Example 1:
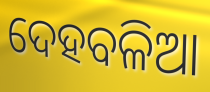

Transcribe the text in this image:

ଦେହବଳିଆ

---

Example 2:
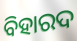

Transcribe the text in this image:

ବିହାରଦ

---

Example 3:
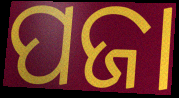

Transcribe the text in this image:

ପଜା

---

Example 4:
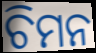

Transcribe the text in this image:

ଚିମନ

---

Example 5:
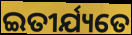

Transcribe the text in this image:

ଇତୀର୍ଯ୍ୟତେ